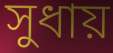
সুধায়